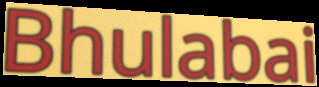
Bhulabai